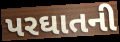
પરઘાતની